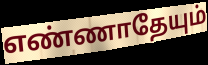
எண்ணாதேயும்